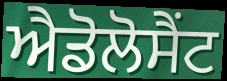
ਐਡੋਲੋਸੈਂਟ